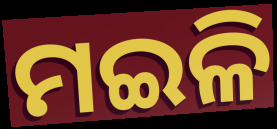
ମଇଳି